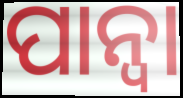
ପାନ୍ଵା